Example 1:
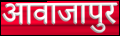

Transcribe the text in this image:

आवाजापुर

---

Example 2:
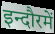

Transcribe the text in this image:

इन्दौरमें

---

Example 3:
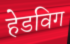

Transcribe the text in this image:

हेडविग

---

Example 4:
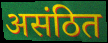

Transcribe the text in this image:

असंठित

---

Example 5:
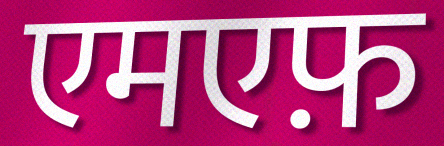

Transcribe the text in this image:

एमएफ़